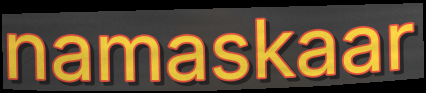
namaskaar